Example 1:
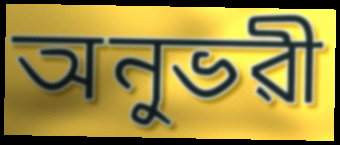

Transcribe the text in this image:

অনুভৱী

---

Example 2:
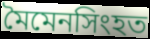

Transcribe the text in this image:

মৈমেনসিংহত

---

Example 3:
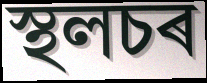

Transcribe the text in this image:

স্থলচৰ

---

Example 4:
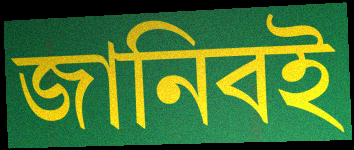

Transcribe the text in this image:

জানিবই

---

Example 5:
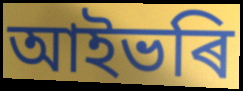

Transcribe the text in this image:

আইভৰি